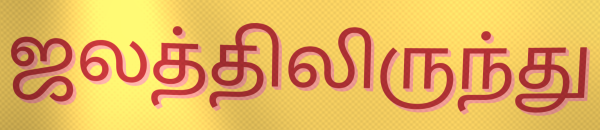
ஜலத்திலிருந்து